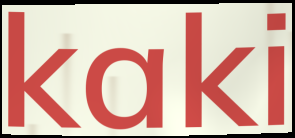
kaki